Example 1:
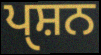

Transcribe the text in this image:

ਪੑਸ਼ਨ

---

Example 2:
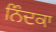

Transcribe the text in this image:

ਨਿੰਦਕਾ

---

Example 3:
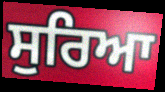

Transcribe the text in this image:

ਸੁਰਿਆ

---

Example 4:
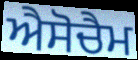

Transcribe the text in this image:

ਐਸੋਚੈਮ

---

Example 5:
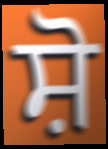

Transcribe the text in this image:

ਸ਼ੋ